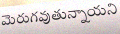
మెరుగవుతున్నాయని